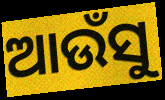
ଆଉଁସୁ